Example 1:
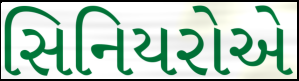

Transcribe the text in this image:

સિનિયરોએ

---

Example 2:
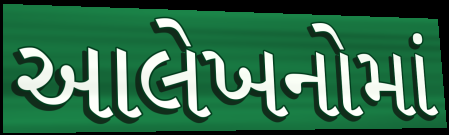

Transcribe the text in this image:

આલેખનોમાં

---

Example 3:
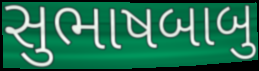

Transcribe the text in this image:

સુભાષબાબુ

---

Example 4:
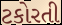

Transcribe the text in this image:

ટકોરતી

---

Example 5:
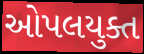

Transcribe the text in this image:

ઓપલયુક્ત